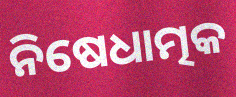
ନିଷେଧାତ୍ମକ